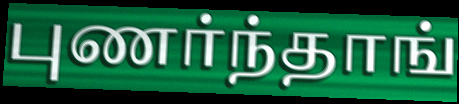
புணர்ந்தாங்